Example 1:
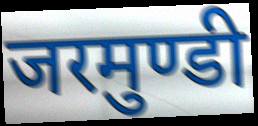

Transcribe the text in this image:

जरमुण्डी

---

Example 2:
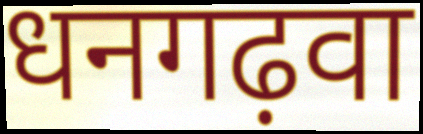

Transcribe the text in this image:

धनगढ़वा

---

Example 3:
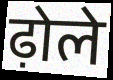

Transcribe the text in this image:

ढ़ोले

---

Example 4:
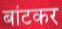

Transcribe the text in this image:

बांटकर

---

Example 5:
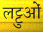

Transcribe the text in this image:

लट्टुओं